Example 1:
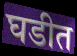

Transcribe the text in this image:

घडीत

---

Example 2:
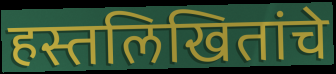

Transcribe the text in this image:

हस्तलिखितांचे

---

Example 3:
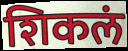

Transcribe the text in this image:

शिकलं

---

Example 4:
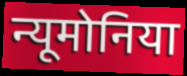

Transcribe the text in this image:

न्यूमोनिया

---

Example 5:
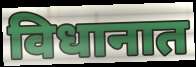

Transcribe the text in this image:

विधानात